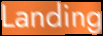
Landing